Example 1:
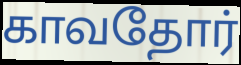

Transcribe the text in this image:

காவதோர்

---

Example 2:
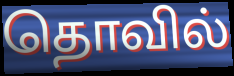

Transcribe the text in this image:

தொவில்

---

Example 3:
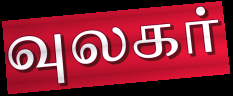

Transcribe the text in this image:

வுலகர்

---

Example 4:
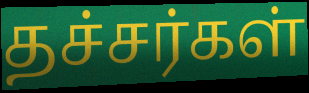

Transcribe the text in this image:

தச்சர்கள்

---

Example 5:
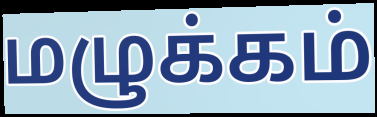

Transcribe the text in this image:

மழுக்கம்